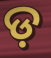
ଡ଼